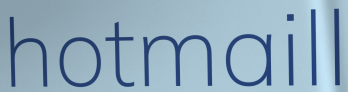
hotmaill